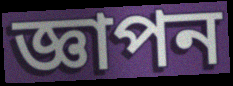
জ্ঞাপন